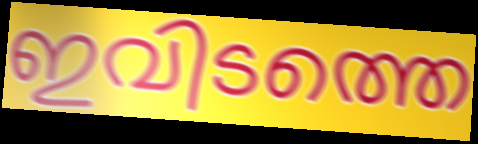
ഇവിടത്തെ